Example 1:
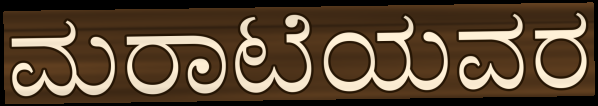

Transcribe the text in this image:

ಮರಾಟೆಯವರ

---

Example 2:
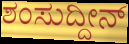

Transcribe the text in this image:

ಶಂಸುದ್ದೀನ್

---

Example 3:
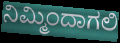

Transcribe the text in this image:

ನಿಮ್ಮಿಂದಾಗಲಿ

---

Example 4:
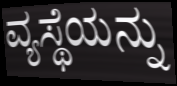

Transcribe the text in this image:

ವ್ಯಸ್ಥೆಯನ್ನು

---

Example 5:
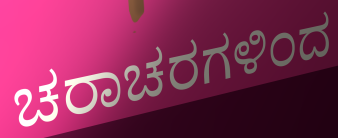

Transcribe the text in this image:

ಚರಾಚರಗಳಿಂದ